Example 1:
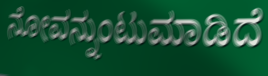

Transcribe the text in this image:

ನೋವನ್ನುಂಟುಮಾಡಿದೆ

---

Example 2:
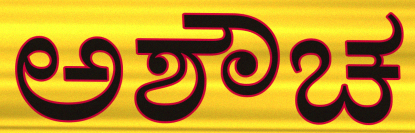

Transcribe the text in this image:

ಅಶೌಚ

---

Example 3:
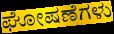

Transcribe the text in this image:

ಘೋಷಣೆಗಳು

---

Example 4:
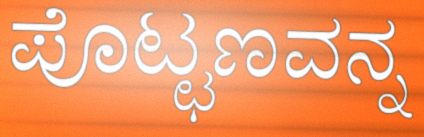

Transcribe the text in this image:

ಪೊಟ್ಟಣವನ್ನ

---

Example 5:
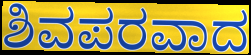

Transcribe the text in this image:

ಶಿವಪರವಾದ